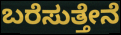
ಬರೆಸುತ್ತೇನೆ